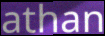
athan